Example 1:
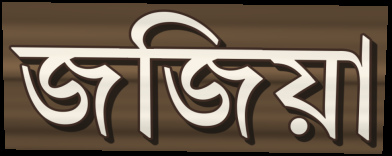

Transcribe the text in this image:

জজিয়া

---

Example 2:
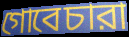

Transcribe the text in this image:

গোবেচারা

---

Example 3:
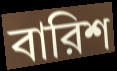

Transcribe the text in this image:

বারিশ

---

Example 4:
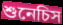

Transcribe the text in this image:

শুনেচিস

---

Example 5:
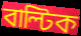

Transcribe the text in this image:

বাল্টিক